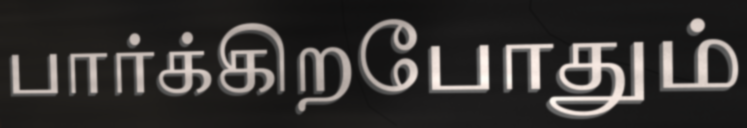
பார்க்கிறபோதும்